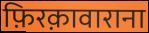
फ़िरक़ावाराना